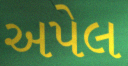
અપેલ